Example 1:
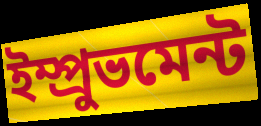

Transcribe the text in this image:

ইম্প্রুভমেন্ট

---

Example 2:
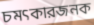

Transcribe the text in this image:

চমৎকারজনক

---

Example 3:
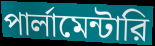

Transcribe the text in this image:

পার্লামেন্টারি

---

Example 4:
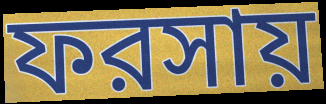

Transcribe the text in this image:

ফরসায়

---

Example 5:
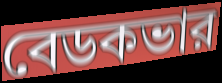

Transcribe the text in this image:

বেডকভার